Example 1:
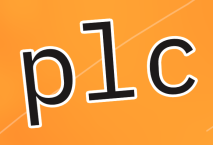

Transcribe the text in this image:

plc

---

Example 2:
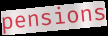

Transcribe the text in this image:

pensions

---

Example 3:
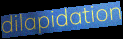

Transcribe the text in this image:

dilapidation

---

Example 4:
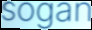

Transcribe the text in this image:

sogan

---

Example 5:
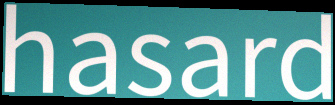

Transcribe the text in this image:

hasard